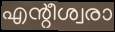
എന്റീശ്വരാ